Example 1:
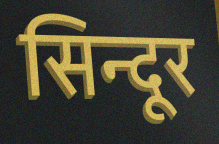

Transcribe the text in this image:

सिन्दूर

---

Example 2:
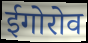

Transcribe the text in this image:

ईगोरोव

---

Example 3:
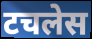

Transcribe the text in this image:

टचलेस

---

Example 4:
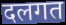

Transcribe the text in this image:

दलगत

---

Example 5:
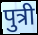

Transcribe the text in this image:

पुत्री